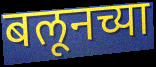
बलूनच्या